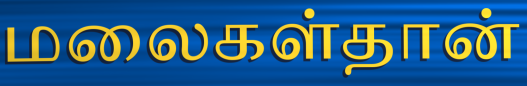
மலைகள்தான்